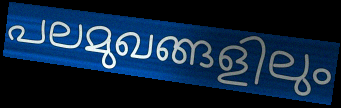
പലമുഖങ്ങളിലും